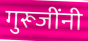
गुरूजींनी